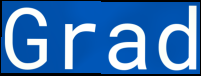
Grad